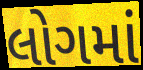
લોગમાં